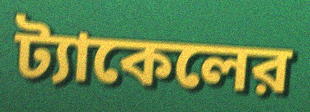
ট্যাকেলের